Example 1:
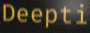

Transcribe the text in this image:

Deepti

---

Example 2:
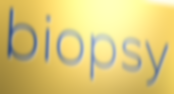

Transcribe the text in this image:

biopsy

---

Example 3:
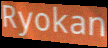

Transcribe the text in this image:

Ryokan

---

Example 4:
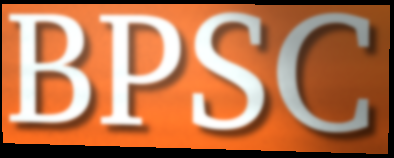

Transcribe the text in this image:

BPSC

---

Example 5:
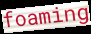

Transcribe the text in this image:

foaming